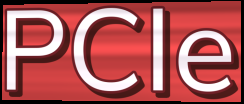
PCIe